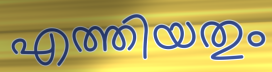
എത്തിയതും